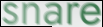
snare